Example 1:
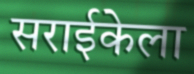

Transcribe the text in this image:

सराईकेला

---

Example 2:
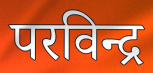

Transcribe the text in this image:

परविन्द्र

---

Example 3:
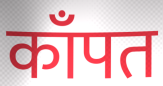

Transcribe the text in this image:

काँपत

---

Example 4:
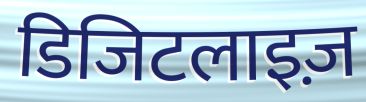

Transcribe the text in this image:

डिजिटलाइज़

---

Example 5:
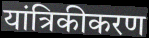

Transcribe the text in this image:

यांत्रिकीकरण